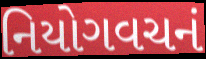
નિયોગવચનં